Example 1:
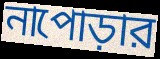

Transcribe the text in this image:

নাপোড়ার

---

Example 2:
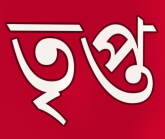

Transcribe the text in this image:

তৃপ্ত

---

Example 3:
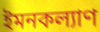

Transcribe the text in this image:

ইমনকল্যাণ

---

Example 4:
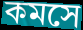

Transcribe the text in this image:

কমসে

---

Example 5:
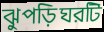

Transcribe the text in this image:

ঝুপড়িঘরটি